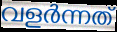
വളർന്നത്